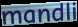
mandli